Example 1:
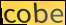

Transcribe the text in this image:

cobe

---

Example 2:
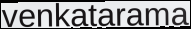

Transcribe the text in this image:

venkatarama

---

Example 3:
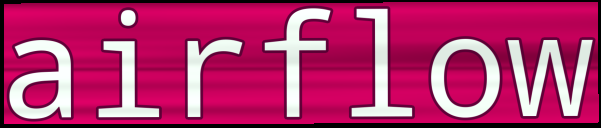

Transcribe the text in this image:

airflow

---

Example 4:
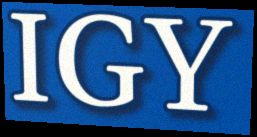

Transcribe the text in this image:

IGY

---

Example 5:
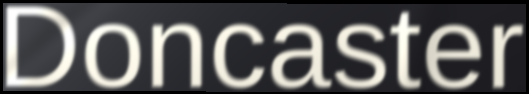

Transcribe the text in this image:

Doncaster